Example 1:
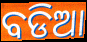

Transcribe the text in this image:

ବଡିଆ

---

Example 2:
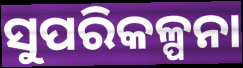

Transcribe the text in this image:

ସୁପରିକଳ୍ପନା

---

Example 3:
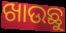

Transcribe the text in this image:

ଖାଉଛୁ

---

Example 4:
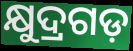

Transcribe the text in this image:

କ୍ଷୁଦ୍ରଗଡ଼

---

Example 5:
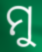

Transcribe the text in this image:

ମୁ